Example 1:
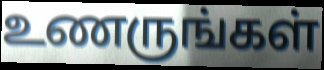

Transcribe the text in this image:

உணருங்கள்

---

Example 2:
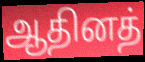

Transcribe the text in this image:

ஆதினத்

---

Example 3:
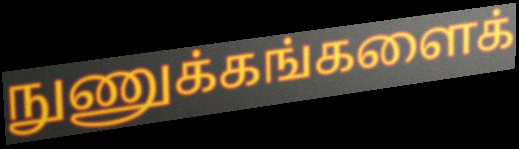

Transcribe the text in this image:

நுணுக்கங்களைக்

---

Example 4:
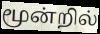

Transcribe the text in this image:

மூன்றில்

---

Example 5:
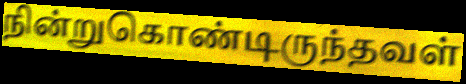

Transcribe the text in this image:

நின்றுகொண்டிருந்தவள்